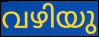
വഴിയു